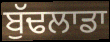
ਬੁੱਢਲਾਡਾ